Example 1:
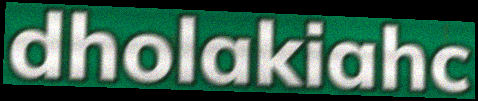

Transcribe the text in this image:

dholakiahc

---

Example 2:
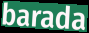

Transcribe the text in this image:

barada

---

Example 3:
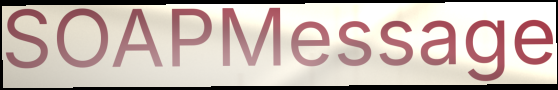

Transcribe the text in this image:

SOAPMessage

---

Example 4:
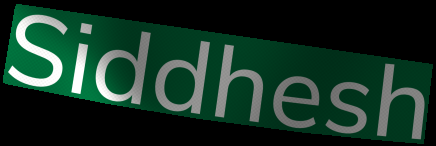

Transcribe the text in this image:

Siddhesh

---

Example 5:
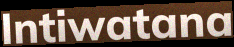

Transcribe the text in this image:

Intiwatana